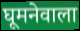
घूमनेवाला